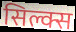
सिल्क्स